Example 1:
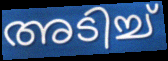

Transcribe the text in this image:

അടിച്ച്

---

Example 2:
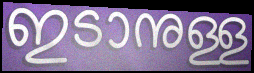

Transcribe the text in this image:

ഇടാനുള്ള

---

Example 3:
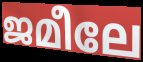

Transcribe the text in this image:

ജമീലേ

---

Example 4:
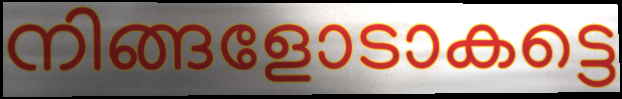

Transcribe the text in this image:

നിങ്ങളോടാകട്ടെ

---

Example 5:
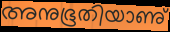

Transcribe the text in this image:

അനുഭൂതിയാണു്